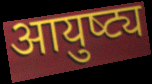
आयुष्ट्य